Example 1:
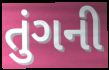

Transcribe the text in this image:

તુંગની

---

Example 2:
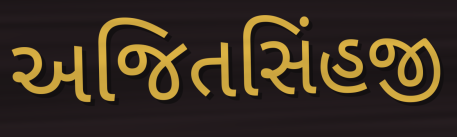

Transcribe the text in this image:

અજિતસિંહજી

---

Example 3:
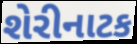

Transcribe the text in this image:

શેરીનાટક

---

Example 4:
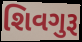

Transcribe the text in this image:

શિવગુરૂ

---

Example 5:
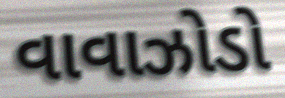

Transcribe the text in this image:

વાવાઝોડો